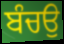
ਬੰਚਉ